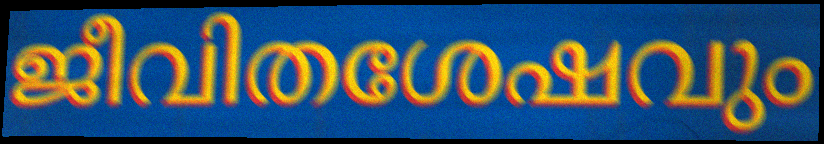
ജീവിതശേഷവും